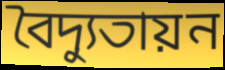
বৈদ্যুতায়ন